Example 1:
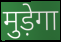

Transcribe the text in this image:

मुड़ेगा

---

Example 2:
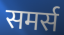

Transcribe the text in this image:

समर्स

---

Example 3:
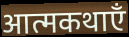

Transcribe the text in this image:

आत्मकथाएँ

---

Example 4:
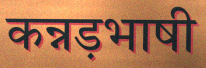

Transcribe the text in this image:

कन्नड़भाषी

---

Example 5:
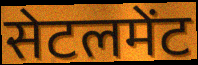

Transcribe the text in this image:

सेटलमेंट